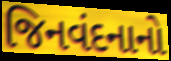
જિનવંદનાનો